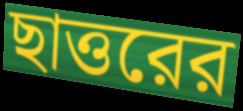
ছাত্তরের